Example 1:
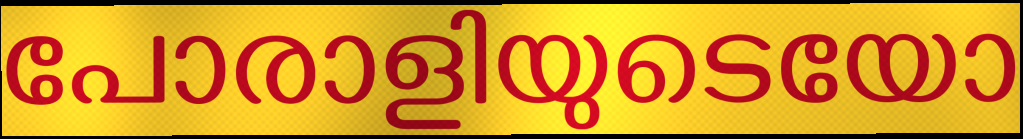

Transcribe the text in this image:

പോരാളിയുടെയോ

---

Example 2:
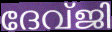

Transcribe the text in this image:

ദേവ്ജി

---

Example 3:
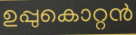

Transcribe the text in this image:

ഉപ്പുകൊറ്റൻ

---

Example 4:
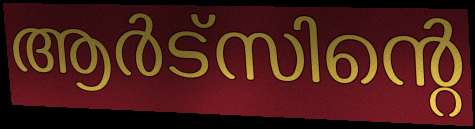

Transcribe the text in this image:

ആർട്സിന്റെ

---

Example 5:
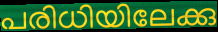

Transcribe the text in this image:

പരിധിയിലേക്കു